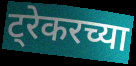
ट्रेकरच्या